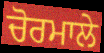
ਚੋਰਮਾਲੇ